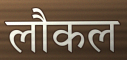
लौकल